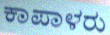
ಕಾಪಾಳರು